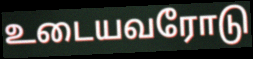
உடையவரோடு